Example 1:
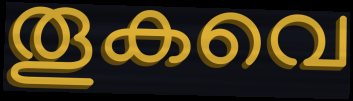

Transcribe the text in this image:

തൂകവെ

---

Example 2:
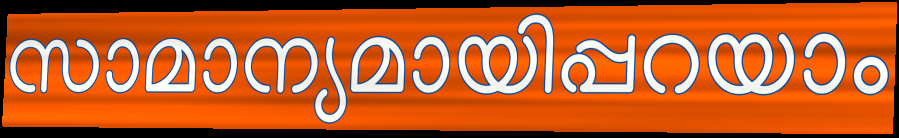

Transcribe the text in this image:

സാമാന്യമായിപ്പറയാം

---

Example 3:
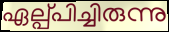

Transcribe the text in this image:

ഏല്പ്പിച്ചിരുന്നു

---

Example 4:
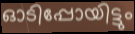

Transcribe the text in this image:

ഓടിപ്പോയിട്ടും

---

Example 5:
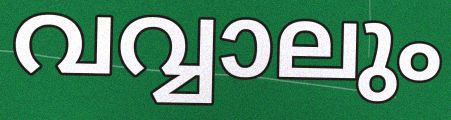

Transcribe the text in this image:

വവ്വാലും